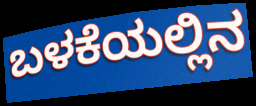
ಬಳಕೆಯಲ್ಲಿನ